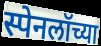
स्पेनलॉच्या